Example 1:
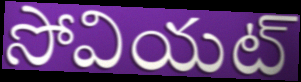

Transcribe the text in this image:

సోవియట్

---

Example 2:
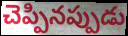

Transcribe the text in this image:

చెప్పినప్పుడు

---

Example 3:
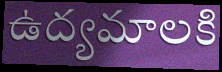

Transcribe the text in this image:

ఉద్యమాలకి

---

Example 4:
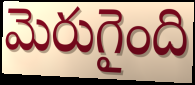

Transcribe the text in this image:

మెరుగైంది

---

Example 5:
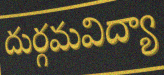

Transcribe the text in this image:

దుర్గమవిద్యా